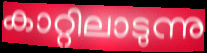
കാറ്റിലാടുന്നു